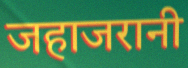
जहाजरानी